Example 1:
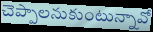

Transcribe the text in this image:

చెప్పాలనుకుంటున్నావో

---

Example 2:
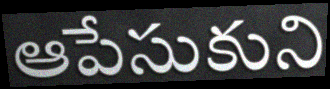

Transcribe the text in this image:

ఆపేసుకుని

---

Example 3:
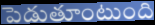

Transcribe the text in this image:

పెడుతూంటుంది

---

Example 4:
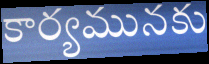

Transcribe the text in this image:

కార్యమునకు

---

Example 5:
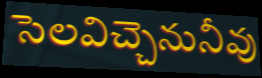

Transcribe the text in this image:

సెలవిచ్చెనునీవు